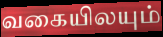
வகையிலயும்